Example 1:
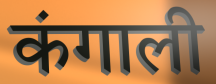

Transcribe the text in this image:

कंगाली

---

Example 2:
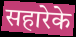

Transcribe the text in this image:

सहारेके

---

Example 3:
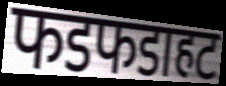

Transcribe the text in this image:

फडफडाहट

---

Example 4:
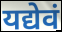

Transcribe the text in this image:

यद्येवं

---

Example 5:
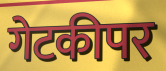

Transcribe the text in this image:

गेटकीपर